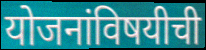
योजनांविषयीची